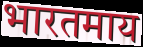
भारतमाय